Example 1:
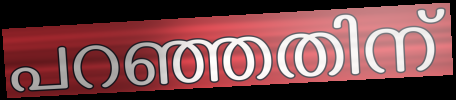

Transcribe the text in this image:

പറഞ്ഞതിന്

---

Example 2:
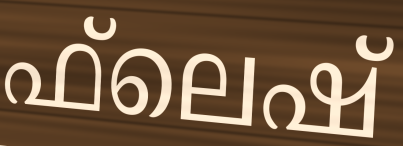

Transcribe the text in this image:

ഫ്‌ലെഷ്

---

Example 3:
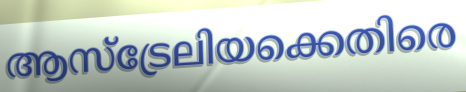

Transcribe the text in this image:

ആസ്ട്രേലിയക്കെതിരെ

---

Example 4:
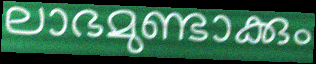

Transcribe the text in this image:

ലാഭമുണ്ടാക്കും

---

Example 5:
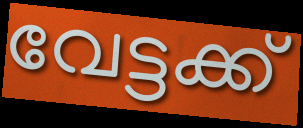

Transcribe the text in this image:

വേട്ടക്ക്